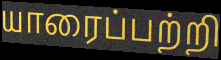
யாரைப்பற்றி